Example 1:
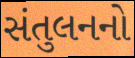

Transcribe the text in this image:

સંતુલનનો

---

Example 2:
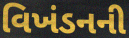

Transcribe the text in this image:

વિખંડનની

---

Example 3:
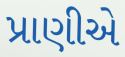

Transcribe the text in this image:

પ્રાણીએ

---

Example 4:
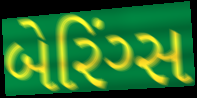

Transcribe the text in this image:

બેરિંગ્સ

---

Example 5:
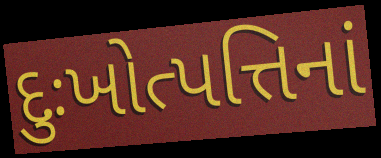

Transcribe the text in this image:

દુઃખોત્પત્તિનાં